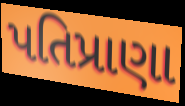
પતિપ્રાણા